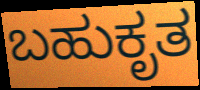
ಬಹುಕೃತ